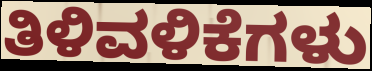
ತಿಳಿವಳಿಕೆಗಳು